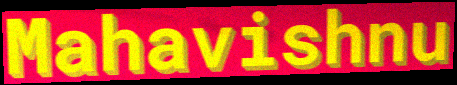
Mahavishnu